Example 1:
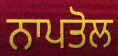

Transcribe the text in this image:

ਨਾਪਤੋਲ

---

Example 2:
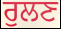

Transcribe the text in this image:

ਰੁਲਣ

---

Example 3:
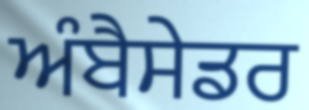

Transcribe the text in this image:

ਅੰਬੈਸੇਡਰ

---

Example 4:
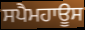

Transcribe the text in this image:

ਸਪੈਮਹਾਊਸ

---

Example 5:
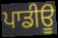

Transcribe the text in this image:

ਪਾਡੀਊ